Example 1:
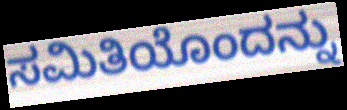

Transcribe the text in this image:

ಸಮಿತಿಯೊಂದನ್ನು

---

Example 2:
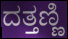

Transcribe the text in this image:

ದತ್ತಣ್ಣಿ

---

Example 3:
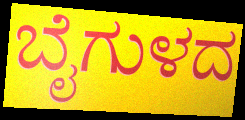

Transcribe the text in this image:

ಬೈಗುಳದ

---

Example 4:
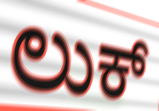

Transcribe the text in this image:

ಲುಕ್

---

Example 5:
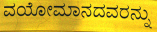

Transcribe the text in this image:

ವಯೋಮಾನದವರನ್ನು